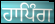
ਹਾਪਿੰਗ